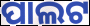
ପାଲଟ